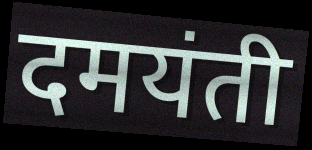
दमयंती